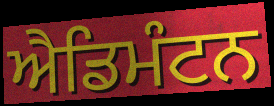
ਐਡਿਮੰਟਨ